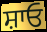
ਸ਼ਾਓ